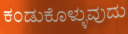
ಕಂಡುಕೊಳ್ಳುವುದು